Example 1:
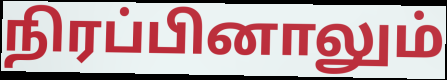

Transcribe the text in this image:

நிரப்பினாலும்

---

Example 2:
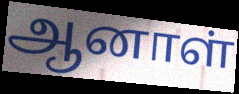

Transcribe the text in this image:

ஆனாள்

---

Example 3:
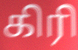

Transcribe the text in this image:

கிரி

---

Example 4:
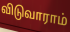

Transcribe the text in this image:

விடுவாராம்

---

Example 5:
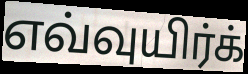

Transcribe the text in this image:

எவ்வுயிர்க்